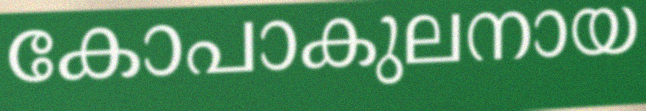
കോപാകുലനായ